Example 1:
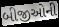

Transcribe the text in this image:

બીજીઓની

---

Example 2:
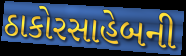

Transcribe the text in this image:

ઠાકોરસાહેબની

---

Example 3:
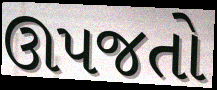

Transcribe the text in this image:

ઊપજતો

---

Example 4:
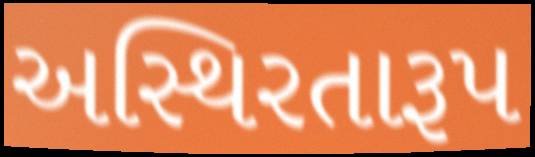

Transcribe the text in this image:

અસ્થિરતારૂપ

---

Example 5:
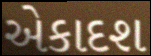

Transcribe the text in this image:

એકાદશ